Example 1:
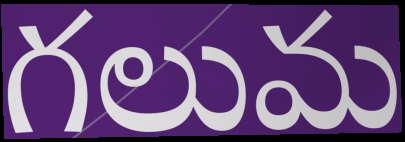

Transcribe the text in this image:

గలుమ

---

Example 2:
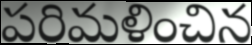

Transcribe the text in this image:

పరిమళించిన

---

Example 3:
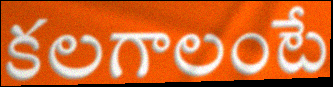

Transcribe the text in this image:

కలగాలంటే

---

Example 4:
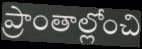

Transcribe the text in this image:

ప్రాంతాల్లోంచి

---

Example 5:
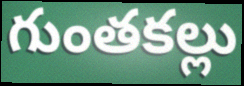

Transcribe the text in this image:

గుంతకల్లు